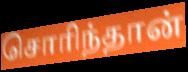
சொரிந்தான்